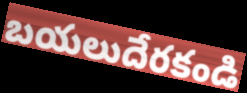
బయలుదేరకండి